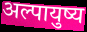
अल्पायुष्य